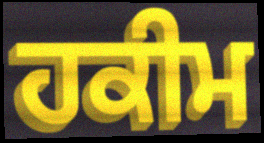
ਹਕੀਮ